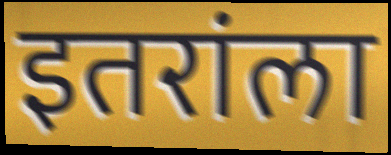
इतरांला